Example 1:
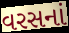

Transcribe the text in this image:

વરસનાં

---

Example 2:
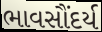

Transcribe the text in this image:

ભાવસૌંદર્ય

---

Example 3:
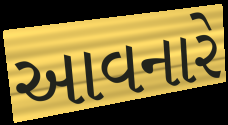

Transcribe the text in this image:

આવનારે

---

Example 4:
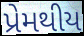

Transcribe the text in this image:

પ્રેમથીય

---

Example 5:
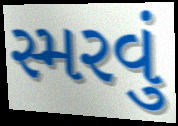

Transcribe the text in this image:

સ્મરવું